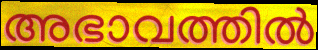
അഭാവത്തിൽ